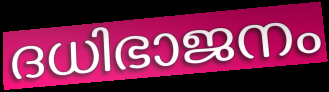
ദധിഭാജനം